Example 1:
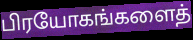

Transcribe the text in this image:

பிரயோகங்களைத்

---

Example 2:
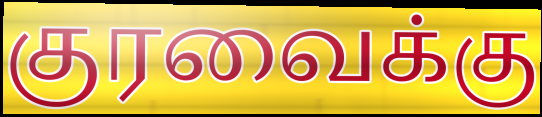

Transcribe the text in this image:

குரவைக்கு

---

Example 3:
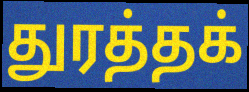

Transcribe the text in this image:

துரத்தக்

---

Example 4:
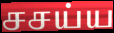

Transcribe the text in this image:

சசய்ய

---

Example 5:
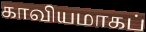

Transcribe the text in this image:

காவியமாகப்